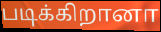
படிக்கிறானா